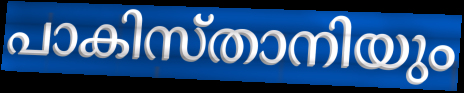
പാകിസ്താനിയും